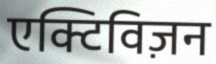
एक्टिविज़न